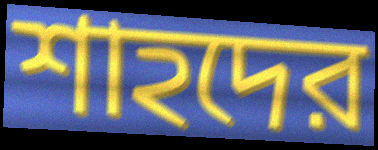
শাহদের